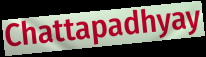
Chattapadhyay